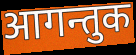
आगन्तुक